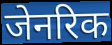
जेनरिक